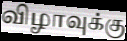
விழாவுக்கு